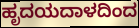
ಹೃದಯದಾಳದಿಂದ